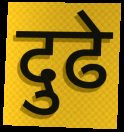
दुढे